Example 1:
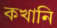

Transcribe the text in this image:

কখানি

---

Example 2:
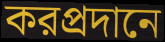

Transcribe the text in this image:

করপ্রদানে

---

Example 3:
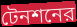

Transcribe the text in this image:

টেনশনের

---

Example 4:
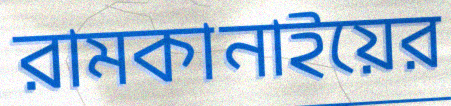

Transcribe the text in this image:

রামকানাইয়ের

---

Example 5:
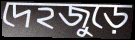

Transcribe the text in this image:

দেহজুড়ে